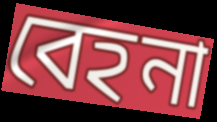
বেহনা